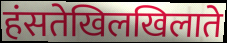
हंसतेखिलखिलाते